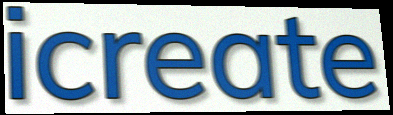
icreate